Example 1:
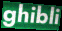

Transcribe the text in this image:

ghibli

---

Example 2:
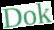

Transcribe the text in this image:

Dok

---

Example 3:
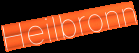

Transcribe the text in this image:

Heilbronn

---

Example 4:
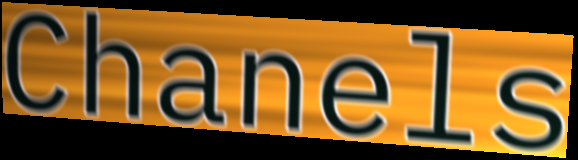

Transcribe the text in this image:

Chanels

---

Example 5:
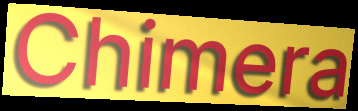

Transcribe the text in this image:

Chimera